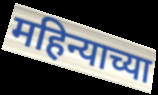
महिन्याच्या